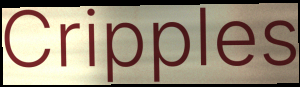
Cripples